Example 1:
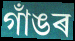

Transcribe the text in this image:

গাঁঙৰ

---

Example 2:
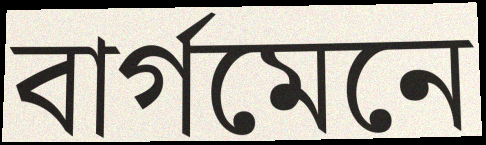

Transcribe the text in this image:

বাৰ্গমেনে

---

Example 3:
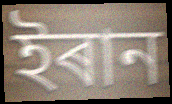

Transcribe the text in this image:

ইৰান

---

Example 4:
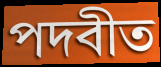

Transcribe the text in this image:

পদবীত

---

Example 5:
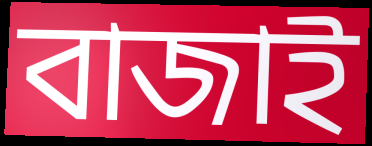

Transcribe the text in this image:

বাজাই